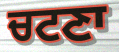
ਚਟਣਾ